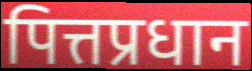
पित्तप्रधान